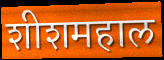
शीशमहाल